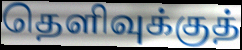
தெளிவுக்குத்